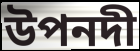
উপনদী